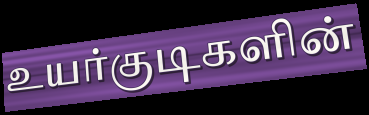
உயர்குடிகளின்